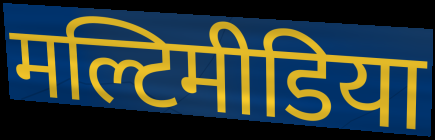
मल्टिमीडिया